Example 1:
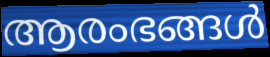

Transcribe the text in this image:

ആരംഭങ്ങൾ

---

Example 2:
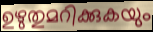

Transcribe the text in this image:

ഉഴുതുമറിക്കുകയും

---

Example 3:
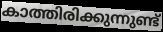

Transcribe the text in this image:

കാത്തിരിക്കുന്നുണ്ട്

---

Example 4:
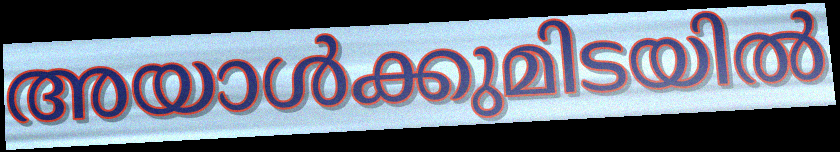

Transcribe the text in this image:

അയാൾക്കുമിടയിൽ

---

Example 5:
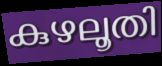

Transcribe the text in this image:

കുഴലൂതി